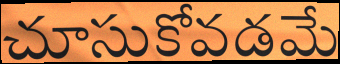
చూసుకోవడమే